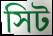
সিট